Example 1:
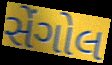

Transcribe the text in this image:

સેંગોલ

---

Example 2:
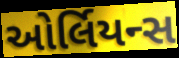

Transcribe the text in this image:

ઓર્લિયન્સ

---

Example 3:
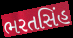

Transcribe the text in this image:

ભરતસિંહ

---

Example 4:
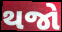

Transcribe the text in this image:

થજો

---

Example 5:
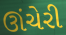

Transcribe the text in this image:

ઊંચેરી